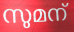
സുമന്